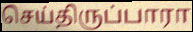
செய்திருப்பாரா